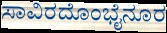
ಸಾವಿರದೊಂಭೈನೂರ